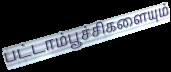
பட்டாம்பூச்சிகளையும்